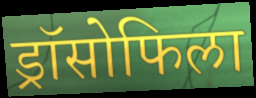
ड्रॉसोफिला